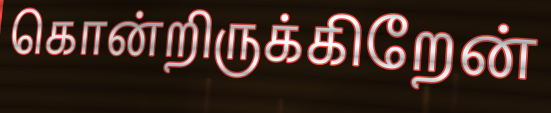
கொன்றிருக்கிறேன்